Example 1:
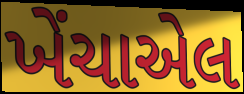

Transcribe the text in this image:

ખેંચાએલ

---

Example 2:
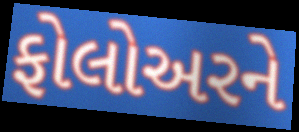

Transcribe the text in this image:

ફોલોઅરને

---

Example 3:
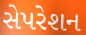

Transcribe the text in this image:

સેપરેશન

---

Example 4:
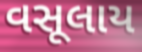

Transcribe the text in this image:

વસૂલાય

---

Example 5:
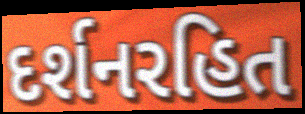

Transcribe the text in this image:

દર્શનરહિત